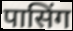
पासिंग